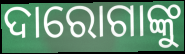
ଦାରୋଗାଙ୍କୁ